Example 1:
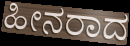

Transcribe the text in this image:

ಹೀನರಾದ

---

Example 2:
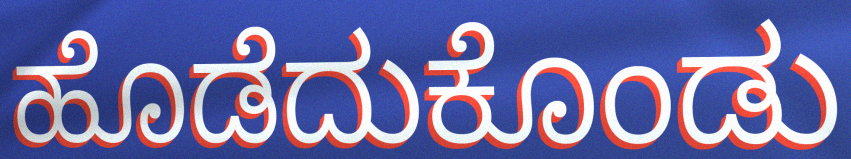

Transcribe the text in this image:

ಹೊಡೆದುಕೊಂಡು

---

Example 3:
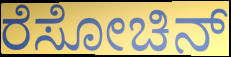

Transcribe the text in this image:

ರೆಸೋಚಿನ್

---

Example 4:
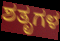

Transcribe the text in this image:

ಶತೃಗಳ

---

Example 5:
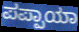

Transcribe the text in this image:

ಪಪ್ಪಾಯಾ